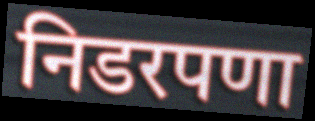
निडरपणा